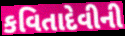
કવિતાદેવીની